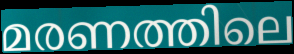
മരണത്തിലെ